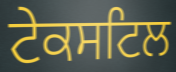
ਟੇਕਸਟਿਲ